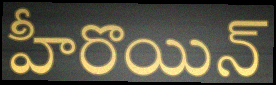
హీరొయిన్